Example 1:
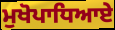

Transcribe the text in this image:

ਮੁਖੋਪਾਧਿਆਏ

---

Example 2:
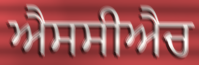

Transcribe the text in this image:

ਐਸਸੀਐਚ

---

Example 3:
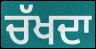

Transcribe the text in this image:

ਚੱਖਦਾ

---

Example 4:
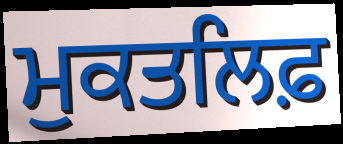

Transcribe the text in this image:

ਮੁਕਤਲਿਫ਼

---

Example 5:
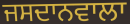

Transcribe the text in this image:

ਜਸਦਾਨਵਾਲਾ